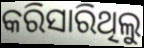
କରିସାରିଥିଲୁ